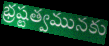
భ్రష్టత్వమునకు